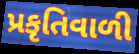
પ્રકૃતિવાળી